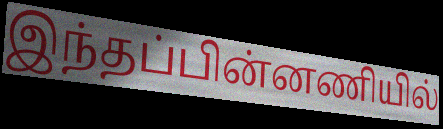
இந்தப்பின்னணியில்